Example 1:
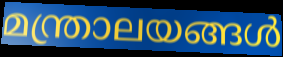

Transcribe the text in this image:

മന്ത്രാലയങ്ങൾ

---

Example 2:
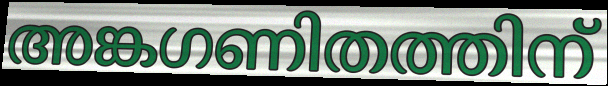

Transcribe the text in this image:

അങ്കഗണിതത്തിന്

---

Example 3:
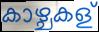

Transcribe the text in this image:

കാഴ്ചകള്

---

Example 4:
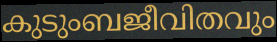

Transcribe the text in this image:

കുടുംബജീവിതവും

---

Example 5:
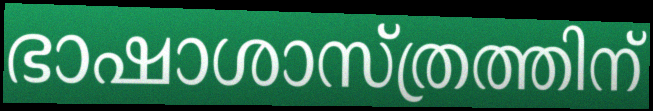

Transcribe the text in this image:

ഭാഷാശാസ്ത്രത്തിന്